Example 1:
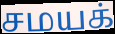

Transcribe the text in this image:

சமயக்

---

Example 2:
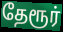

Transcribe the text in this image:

தேரூர்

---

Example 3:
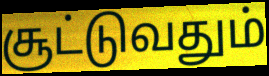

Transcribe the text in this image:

சூட்டுவதும்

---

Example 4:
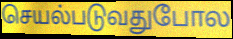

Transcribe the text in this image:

செயல்படுவதுபோல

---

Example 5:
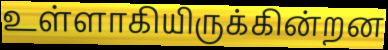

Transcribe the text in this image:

உள்ளாகியிருக்கின்றன